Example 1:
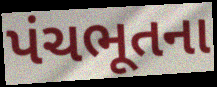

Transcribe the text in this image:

પંચભૂતના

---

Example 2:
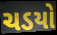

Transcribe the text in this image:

ચડયો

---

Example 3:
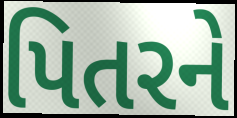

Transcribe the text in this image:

પિતરને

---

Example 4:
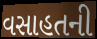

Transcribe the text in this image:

વસાહતની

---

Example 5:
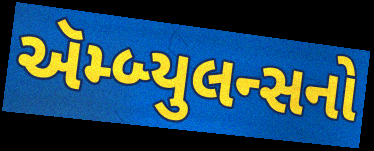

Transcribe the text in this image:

ઍમ્બ્યુલન્સનો